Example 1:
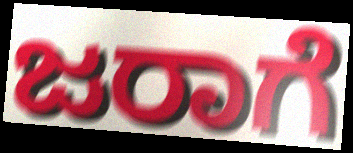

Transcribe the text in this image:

ಜರಾಗೆ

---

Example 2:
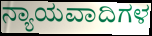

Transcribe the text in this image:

ನ್ಯಾಯವಾದಿಗಳ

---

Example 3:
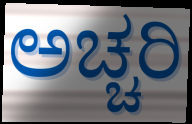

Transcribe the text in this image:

ಅಚ್ಚರಿ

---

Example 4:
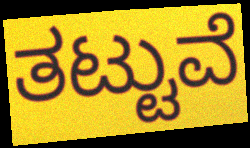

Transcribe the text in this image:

ತಟ್ಟುವೆ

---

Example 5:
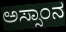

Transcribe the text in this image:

ಅಸ್ಸಾಂನ